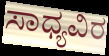
ಸಾಧ್ಯವಿರ